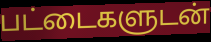
பட்டைகளுடன்